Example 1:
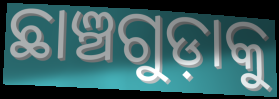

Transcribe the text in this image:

ଛାଞ୍ଚଗୁଡ଼ାକୁ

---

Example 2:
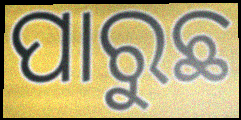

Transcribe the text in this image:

ପାରୁଛ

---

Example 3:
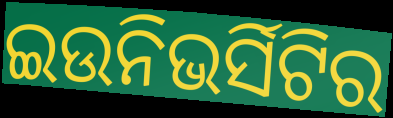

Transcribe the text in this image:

ଇଉନିଭର୍ସିଟିର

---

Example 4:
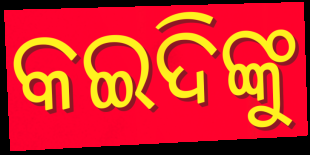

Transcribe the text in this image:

କଇଦିଙ୍କୁ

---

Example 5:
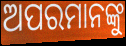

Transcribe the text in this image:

ଅପରମାନଙ୍କୁ